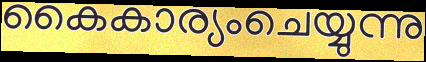
കൈകാര്യംചെയ്യുന്നു